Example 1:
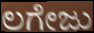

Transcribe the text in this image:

ಲಗೇಜು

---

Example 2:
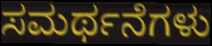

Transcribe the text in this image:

ಸಮರ್ಥನೆಗಳು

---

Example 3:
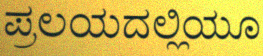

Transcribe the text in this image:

ಪ್ರಲಯದಲ್ಲಿಯೂ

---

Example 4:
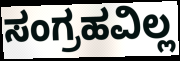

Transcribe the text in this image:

ಸಂಗ್ರಹವಿಲ್ಲ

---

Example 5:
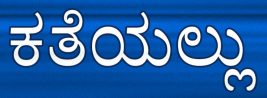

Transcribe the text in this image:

ಕತೆಯಲ್ಲು